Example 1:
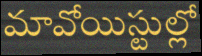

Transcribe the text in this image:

మావోయిస్టుల్లో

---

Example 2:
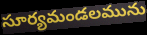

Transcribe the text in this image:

సూర్యమండలమును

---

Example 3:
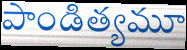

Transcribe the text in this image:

పాండిత్యమూ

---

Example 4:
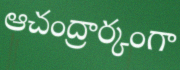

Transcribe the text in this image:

ఆచంద్రార్కంగా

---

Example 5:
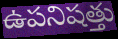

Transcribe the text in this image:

ఉపనిషత్తు